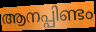
ആനപ്പിണ്ടം